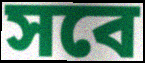
সবে